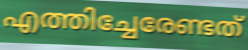
എത്തിച്ചേരേണ്ടത്